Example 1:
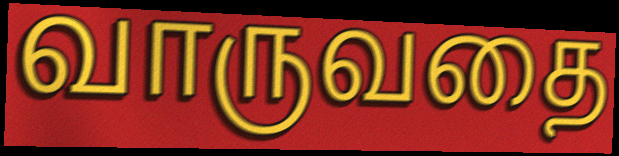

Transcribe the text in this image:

வாருவதை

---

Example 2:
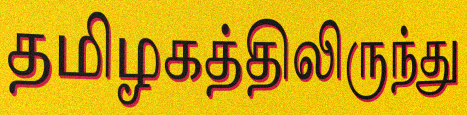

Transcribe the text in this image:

தமிழகத்திலிருந்து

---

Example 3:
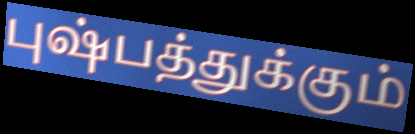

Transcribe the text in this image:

புஷ்பத்துக்கும்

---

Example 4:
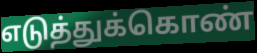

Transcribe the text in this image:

எடுத்துக்கொண்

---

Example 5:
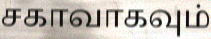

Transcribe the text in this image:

சகாவாகவும்